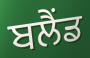
ਬਲੈਂਡ